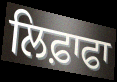
ਲਿਫ਼ਾਫਾ